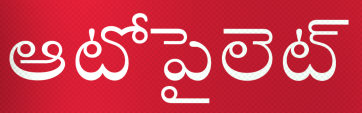
ఆటోపైలెట్